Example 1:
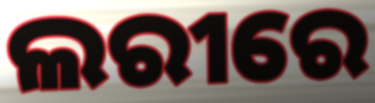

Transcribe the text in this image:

ଲରୀରେ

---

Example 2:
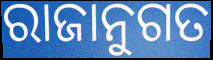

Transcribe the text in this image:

ରାଜାନୁଗତ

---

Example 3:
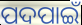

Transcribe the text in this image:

ପଦପାଇଁ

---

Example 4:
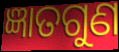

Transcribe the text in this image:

ଜ୍ଞାତଗୁଣ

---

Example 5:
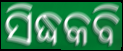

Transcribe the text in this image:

ସିଦ୍ଧକବି